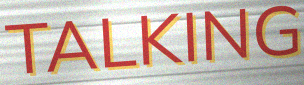
TALKING